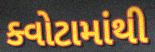
ક્વોટામાંથી